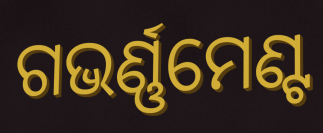
ଗଭର୍ଣ୍ଣମେଣ୍ଟ